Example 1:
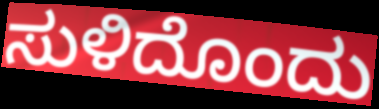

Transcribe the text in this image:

ಸುಳಿದೊಂದು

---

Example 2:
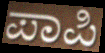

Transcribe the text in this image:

ಪಾಪಿ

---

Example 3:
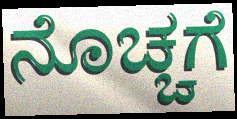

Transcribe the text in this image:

ನೊಚ್ಚಗೆ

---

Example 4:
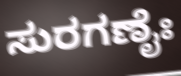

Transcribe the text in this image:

ಸುರಗಣೈಃ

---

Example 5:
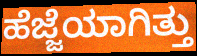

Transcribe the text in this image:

ಹೆಜ್ಜೆಯಾಗಿತ್ತು